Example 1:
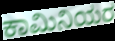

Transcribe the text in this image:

ಕಾಮಿನಿಯರ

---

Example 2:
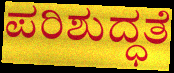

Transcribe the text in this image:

ಪರಿಶುದ್ಧತೆ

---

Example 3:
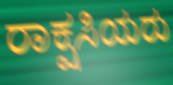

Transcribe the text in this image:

ರಾಕ್ಷಸಿಯರು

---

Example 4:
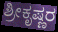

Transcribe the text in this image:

ಶ್ರೀಕೃಷ್ಣರ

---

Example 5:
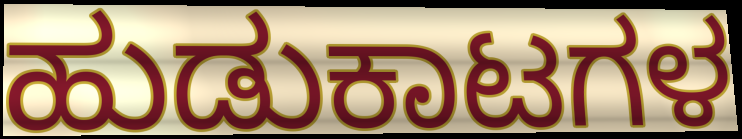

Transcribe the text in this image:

ಹುಡುಕಾಟಗಳ